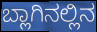
ಬ್ಲಾಗಿನಲ್ಲಿನ